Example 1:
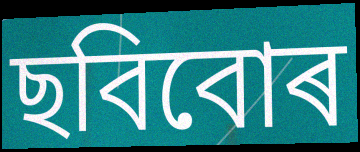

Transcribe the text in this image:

ছবিবোৰ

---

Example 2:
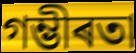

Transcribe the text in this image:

গম্ভীৰতা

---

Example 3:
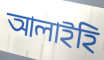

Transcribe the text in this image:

আলাইহি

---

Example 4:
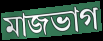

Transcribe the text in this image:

মাজভাগ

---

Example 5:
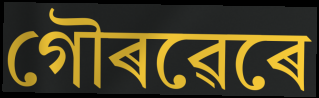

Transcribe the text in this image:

গৌৰৱেৰে